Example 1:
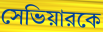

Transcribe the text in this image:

সেভিয়ারকে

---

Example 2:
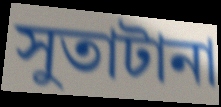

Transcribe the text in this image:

সুতাটানা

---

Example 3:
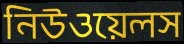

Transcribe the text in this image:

নিউওয়েলস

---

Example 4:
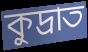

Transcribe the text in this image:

কুদ্রাত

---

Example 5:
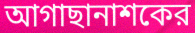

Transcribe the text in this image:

আগাছানাশকের